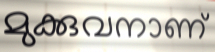
മുക്കുവനാണ്